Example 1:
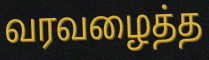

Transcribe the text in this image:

வரவழைத்த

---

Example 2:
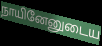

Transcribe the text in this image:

நாயினேனுடைய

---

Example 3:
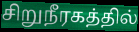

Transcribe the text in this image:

சிறுநீரகத்தில்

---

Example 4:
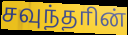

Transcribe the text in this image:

சவுந்தரின்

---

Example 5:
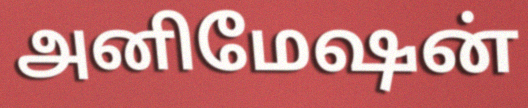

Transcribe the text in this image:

அனிமேஷன்